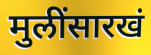
मुलींसारखं